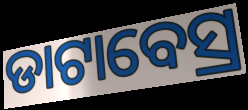
ଡାଟାବେସ୍ର